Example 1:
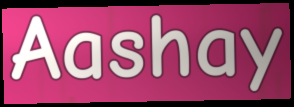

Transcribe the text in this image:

Aashay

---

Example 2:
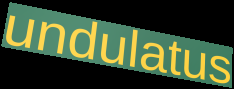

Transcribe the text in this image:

undulatus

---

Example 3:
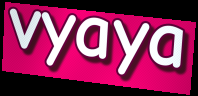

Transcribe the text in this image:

vyaya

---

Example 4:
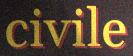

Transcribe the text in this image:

civile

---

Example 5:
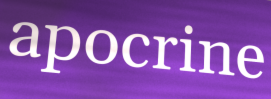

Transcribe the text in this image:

apocrine